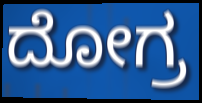
ದೋಗ್ರ